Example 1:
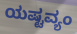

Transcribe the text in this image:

ಯಷ್ಟವ್ಯಂ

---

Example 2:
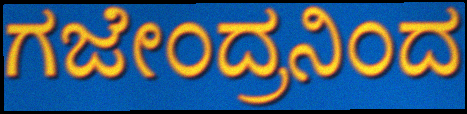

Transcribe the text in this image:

ಗಜೇಂದ್ರನಿಂದ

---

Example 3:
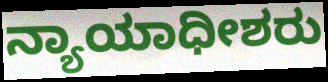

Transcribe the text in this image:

ನ್ಯಾಯಾಧೀಶರು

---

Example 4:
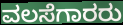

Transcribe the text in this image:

ವಲಸೆಗಾರರು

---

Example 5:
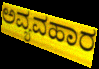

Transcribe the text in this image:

ಅವ್ಯವಹಾರ